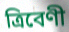
ত্ৰিবেণী